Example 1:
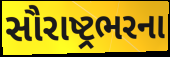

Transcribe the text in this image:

સૌરાષ્ટ્રભરના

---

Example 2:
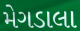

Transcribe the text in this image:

મેગડાલા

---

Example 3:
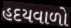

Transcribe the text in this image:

હદયવાળો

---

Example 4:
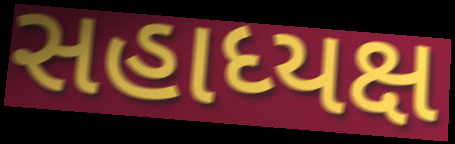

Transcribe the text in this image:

સહાધ્યક્ષ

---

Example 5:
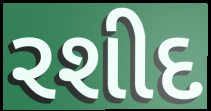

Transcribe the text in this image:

રશીદ